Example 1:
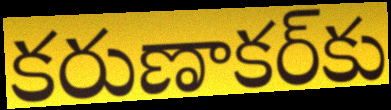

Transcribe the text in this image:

కరుణాకర్‌కు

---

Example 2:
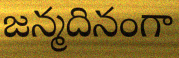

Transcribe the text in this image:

జన్మదినంగా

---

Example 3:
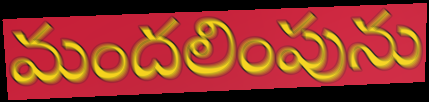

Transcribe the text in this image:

మందలింపును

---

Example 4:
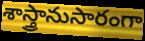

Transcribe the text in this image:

శాస్త్రానుసారంగా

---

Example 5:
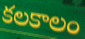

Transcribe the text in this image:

కలకాలం